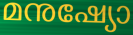
മനുഷ്യോ